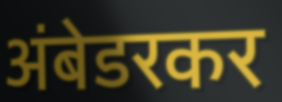
अंबेडरकर